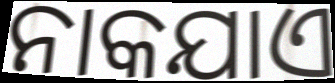
ନାକଯାଏ